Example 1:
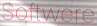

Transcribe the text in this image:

Softwere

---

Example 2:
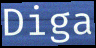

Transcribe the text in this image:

Diga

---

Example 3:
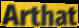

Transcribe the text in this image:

Arthat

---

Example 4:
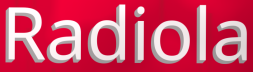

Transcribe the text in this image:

Radiola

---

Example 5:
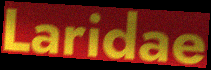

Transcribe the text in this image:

Laridae